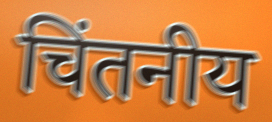
चिंतनीय